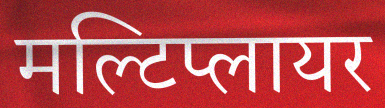
मल्टिप्लायर